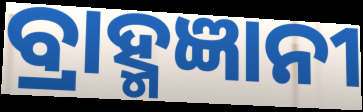
ବ୍ରାହ୍ମଜ୍ଞାନୀ